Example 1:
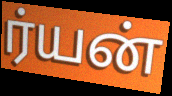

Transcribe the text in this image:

ர்யன்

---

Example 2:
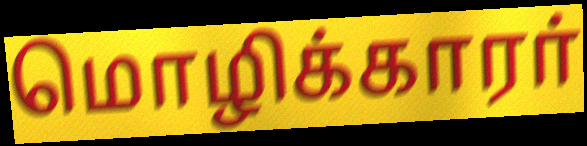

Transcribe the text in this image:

மொழிக்காரர்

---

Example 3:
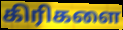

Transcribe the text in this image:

கிரிகளை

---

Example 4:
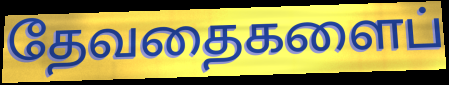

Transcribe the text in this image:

தேவதைகளைப்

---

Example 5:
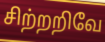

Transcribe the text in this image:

சிற்றறிவே